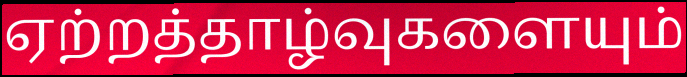
ஏற்றத்தாழ்வுகளையும்